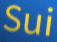
Sui